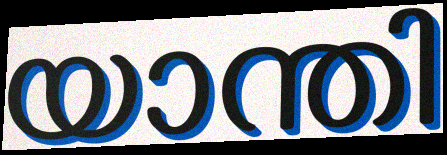
യാന്തി